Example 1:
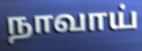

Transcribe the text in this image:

நாவாய்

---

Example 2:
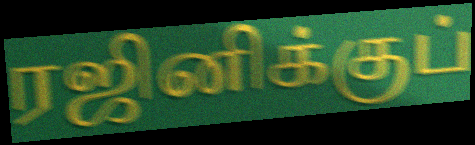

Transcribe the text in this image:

ரஜினிக்குப்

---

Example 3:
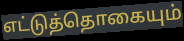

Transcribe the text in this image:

எட்டுத்தொகையும்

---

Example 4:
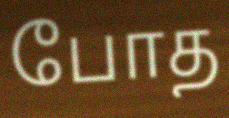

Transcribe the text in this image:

போத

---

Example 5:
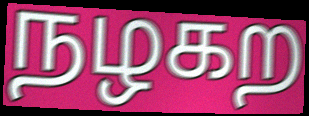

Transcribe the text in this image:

நழகற